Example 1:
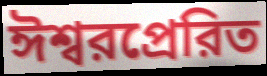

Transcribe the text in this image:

ঈশ্বরপ্রেরিত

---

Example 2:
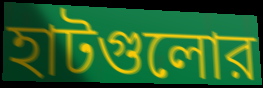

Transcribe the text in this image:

হাটগুলোর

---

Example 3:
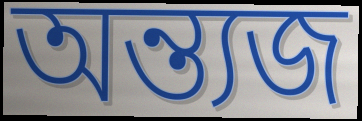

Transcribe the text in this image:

অন্ত্যজ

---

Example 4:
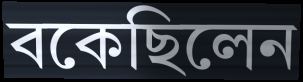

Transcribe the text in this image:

বকেছিলেন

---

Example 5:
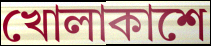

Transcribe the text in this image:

খোলাকাশে